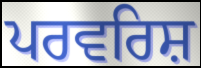
ਪਰਵਰਿਸ਼